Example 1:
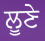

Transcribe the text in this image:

ਲੂਣੇ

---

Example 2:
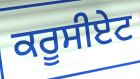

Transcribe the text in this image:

ਕਰੂਸੀਏਟ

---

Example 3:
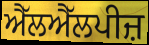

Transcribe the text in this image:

ਐੱਲਐੱਲਪੀਜ਼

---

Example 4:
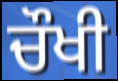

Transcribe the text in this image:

ਚੌਖੀ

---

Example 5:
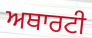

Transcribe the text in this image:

ਅਥਾਰਟੀ